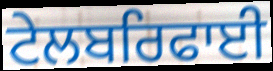
ਟੇਲਬਰਿਫਾਈ